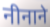
नीनाने